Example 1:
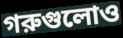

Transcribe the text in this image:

গরুগুলোও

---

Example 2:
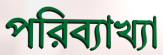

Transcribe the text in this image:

পরিব্যাখ্যা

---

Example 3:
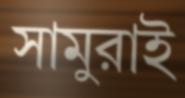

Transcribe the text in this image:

সামুরাই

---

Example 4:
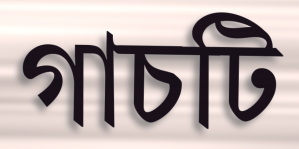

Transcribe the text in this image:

গাচটি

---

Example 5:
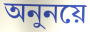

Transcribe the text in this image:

অনুনয়ে